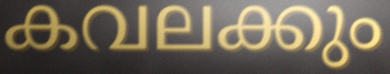
കവലക്കും